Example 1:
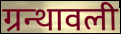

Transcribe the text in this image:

ग्रन्थावली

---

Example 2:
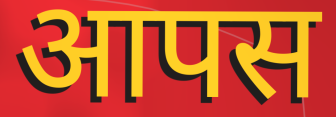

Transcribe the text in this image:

आपस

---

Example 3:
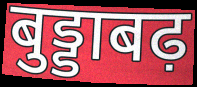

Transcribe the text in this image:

बुड्डाबढ़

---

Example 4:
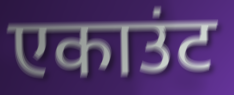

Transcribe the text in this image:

एकाउंट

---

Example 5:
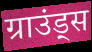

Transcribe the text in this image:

ग्राउंड्स